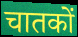
चातकों